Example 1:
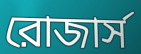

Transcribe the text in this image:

রোজার্স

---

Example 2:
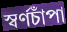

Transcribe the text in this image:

স্বর্ণচাঁপা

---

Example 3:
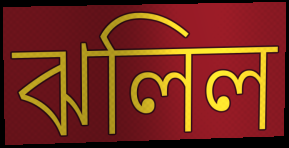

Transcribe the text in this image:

ঝলিল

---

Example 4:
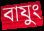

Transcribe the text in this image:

বাযুং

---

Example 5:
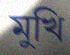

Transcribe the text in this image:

মুখি